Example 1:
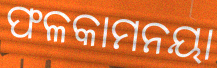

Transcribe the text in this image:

ଫଳକାମନୟା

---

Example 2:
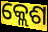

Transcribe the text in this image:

କ୍ଲେଶ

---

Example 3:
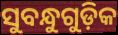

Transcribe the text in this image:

ସୁବନ୍ଧୁଗୁଡ଼ିକ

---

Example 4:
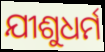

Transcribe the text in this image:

ଯୀଶୁଧର୍ମ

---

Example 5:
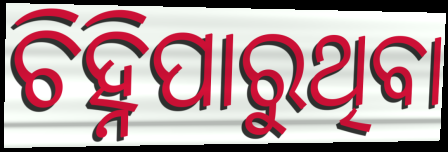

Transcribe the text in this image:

ଚିହ୍ନିପାରୁଥିବା